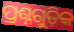
ପ୍ରଶ୍ନଗୁଡ଼ିକ